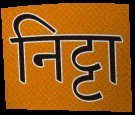
निट्टा